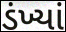
ડંખ્યાં